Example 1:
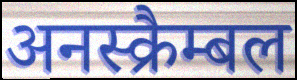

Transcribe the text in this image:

अनस्क्रैम्बल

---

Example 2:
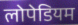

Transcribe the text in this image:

लोपेडियम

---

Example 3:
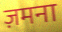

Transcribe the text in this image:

ज़मना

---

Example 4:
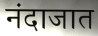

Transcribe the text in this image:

नंदाजात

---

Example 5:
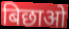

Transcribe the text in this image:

बिछाओ